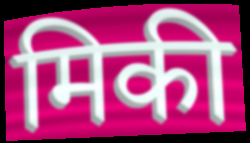
मिकी